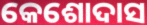
କେଶୋଦାସ